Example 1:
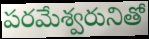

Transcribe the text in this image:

పరమేశ్వరునితో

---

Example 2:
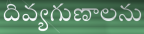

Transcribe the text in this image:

దివ్యగుణాలను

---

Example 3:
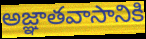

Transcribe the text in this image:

అజ్ఞాతవాసానికి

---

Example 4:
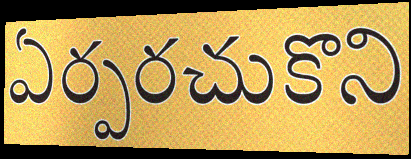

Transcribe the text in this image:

ఏర్పరచుకొని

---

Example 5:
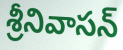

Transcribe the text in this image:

శ్రీనివాసన్